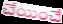
చేయించే